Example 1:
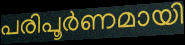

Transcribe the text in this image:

പരിപൂർണമായി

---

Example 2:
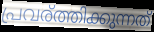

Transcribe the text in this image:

പ്രവര്ത്തിക്കുന്നത്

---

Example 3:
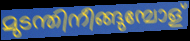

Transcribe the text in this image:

മുടന്തിനീങ്ങുമ്പോള്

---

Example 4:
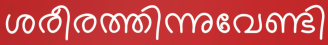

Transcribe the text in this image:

ശരീരത്തിന്നുവേണ്ടി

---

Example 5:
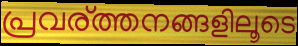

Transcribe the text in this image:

പ്രവര്ത്തനങ്ങളിലൂടെ